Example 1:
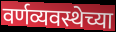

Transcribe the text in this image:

वर्णव्यवस्थेच्या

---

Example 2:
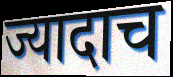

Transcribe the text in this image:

ज्यादाच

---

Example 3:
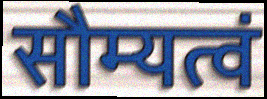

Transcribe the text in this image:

सौम्यत्वं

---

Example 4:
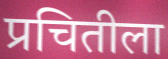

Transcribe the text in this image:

प्रचितीला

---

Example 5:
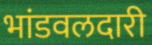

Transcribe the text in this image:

भांडवलदारी